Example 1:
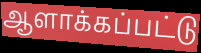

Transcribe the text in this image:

ஆளாக்கப்பட்டு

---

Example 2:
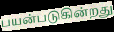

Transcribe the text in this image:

பயன்படுகின்றது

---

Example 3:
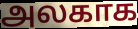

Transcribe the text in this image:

அலகாக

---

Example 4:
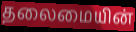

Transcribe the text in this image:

தலைமையின்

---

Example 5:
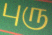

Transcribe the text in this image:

புரு